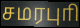
சமரபுரி